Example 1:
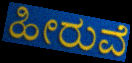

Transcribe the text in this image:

ಹೀರುವೆ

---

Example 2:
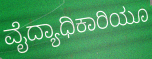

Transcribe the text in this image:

ವೈದ್ಯಾಧಿಕಾರಿಯೂ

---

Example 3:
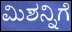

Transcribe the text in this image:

ಮಿಶನ್ನಿಗೆ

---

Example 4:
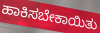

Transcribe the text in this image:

ಹಾಕಿಸಬೇಕಾಯಿತು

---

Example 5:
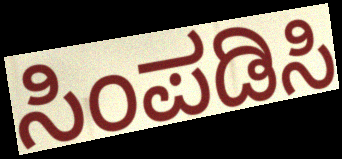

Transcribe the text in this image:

ಸಿಂಪಡಿಸಿ